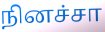
நினச்சா